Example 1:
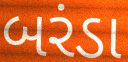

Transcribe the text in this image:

બરંડા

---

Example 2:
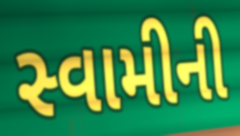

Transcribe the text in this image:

સ્વામીની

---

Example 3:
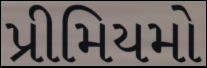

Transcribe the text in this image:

પ્રીમિયમો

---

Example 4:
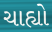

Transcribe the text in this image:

ચાહ્યો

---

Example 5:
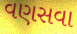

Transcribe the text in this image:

વણસવા